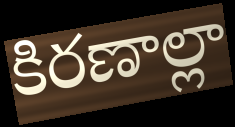
కిరణాల్లా